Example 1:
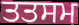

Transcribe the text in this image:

ਤਤਸਮ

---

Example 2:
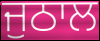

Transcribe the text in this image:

ਜੁਠਾਲ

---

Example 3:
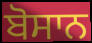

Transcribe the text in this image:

ਬੋਸਾਨ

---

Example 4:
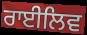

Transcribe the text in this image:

ਰਾਈਲਿਵ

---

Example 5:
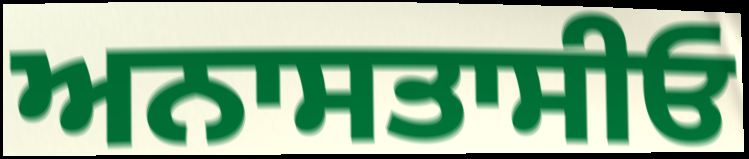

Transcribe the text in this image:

ਅਨਾਸਤਾਸੀਓ